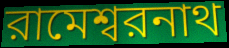
রামেশ্বরনাথ